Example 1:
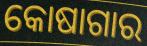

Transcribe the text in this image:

କୋଷାଗାର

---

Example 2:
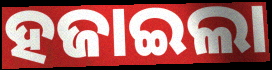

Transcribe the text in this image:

ହଜାଇଲା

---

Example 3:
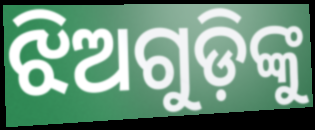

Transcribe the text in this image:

ଝିଅଗୁଡ଼ିଙ୍କୁ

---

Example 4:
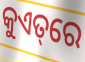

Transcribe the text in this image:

କୁଏତ୍‌ରେ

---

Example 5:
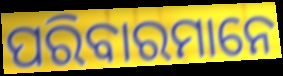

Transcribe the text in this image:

ପରିବାରମାନେ